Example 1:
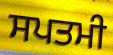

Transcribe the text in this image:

ਸਪਤਮੀ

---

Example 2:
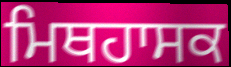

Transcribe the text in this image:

ਮਿਥਹਾਸਕ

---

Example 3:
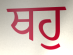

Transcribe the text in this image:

ਥਹੁ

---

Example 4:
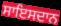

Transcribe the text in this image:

ਸਾਇਸਦਾਨ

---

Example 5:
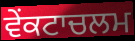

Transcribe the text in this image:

ਵੇਂਕਟਾਚਲਮ